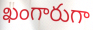
ఖంగారుగా